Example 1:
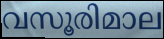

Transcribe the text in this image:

വസൂരിമാല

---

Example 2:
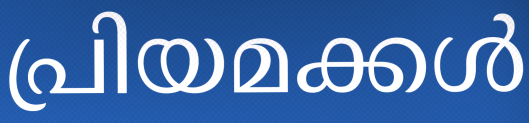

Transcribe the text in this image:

പ്രിയമക്കൾ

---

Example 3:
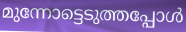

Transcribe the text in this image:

മുന്നോട്ടെടുത്തപ്പോൾ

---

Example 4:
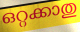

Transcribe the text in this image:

ഒറ്റക്കാതു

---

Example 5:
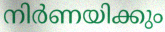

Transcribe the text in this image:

നിർണയിക്കും